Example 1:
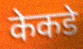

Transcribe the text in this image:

केकडे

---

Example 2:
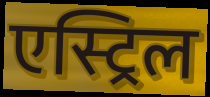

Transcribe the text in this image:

एस्ट्रिल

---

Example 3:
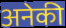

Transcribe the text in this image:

अनेकी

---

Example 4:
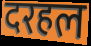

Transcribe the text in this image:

दरहल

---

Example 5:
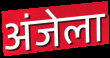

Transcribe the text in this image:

अंजेला